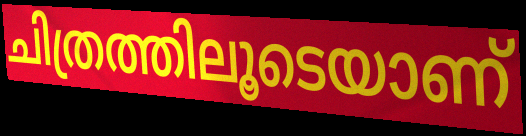
ചിത്രത്തിലൂടെയാണ്